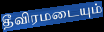
தீவிரமடையும்